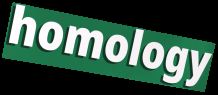
homology